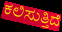
ಕಲಿಸುತ್ತಿದೆ